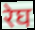
रेघ